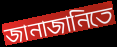
জানাজানিতে